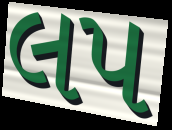
લપ